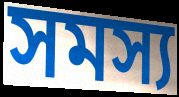
সমস্য